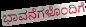
ಭಾವನೆಗಳೊಂದಿಗೆ